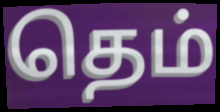
தெம்